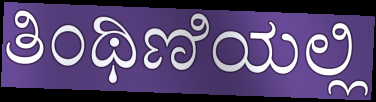
ತಿಂಥಿಣಿಯಲ್ಲಿ